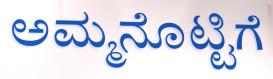
ಅಮ್ಮನೊಟ್ಟಿಗೆ